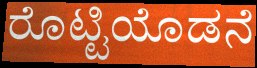
ರೊಟ್ಟಿಯೊಡನೆ